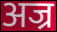
अज्र